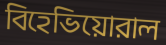
বিহেভিয়োরাল